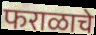
फराळाचे